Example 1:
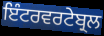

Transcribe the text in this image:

ਇੰਟਰਵਰਟੇਬ੍ਰਲ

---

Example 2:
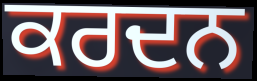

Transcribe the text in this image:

ਕਰਦਨ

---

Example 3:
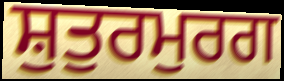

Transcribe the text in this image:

ਸ਼ੁਤੁਰਮੁਰਗ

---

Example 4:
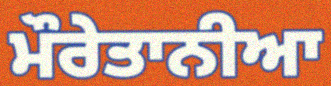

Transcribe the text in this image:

ਮੌਰੇਤਾਨੀਆ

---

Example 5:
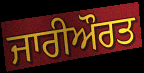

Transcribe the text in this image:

ਜਾਰੀਔਰਤ